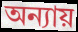
অন্যায়